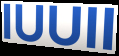
IUUII